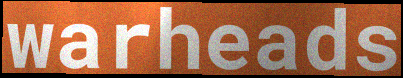
warheads